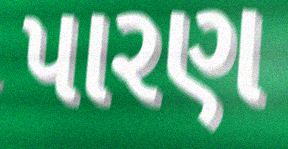
પારણ